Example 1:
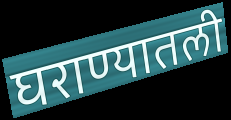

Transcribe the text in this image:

घराण्यातली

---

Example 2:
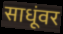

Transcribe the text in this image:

साधूंवर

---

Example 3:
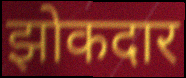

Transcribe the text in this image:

झोकदार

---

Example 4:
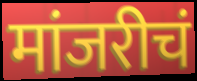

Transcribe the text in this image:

मांजरीचं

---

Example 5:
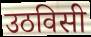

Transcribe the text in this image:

उठविसी